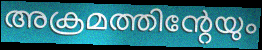
അക്രമത്തിന്റേയും